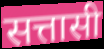
सत्तासी